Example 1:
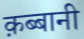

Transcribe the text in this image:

क़ब्बानी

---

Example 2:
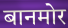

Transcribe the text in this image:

बानमोर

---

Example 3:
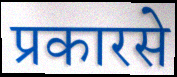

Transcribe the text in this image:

प्रकारसे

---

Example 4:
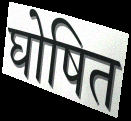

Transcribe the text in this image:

घोषित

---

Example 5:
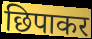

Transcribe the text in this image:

छिपाकर